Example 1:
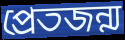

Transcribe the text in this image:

প্রেতজন্ম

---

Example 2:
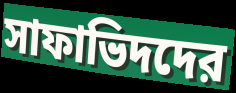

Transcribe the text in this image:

সাফাভিদদের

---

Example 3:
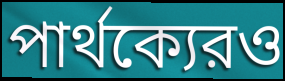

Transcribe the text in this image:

পার্থক্যেরও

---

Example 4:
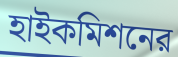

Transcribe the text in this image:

হাইকমিশনের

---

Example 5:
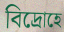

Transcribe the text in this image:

বিদ্রোহে